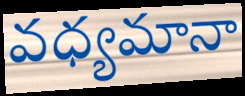
వధ్యమానా